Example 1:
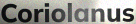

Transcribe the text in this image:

Coriolanus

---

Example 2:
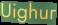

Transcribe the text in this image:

Uighur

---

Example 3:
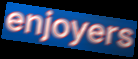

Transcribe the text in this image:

enjoyers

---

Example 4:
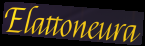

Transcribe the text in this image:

Elattoneura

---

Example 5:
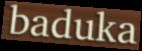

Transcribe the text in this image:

baduka